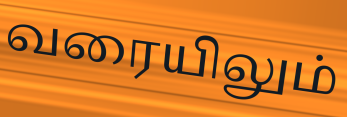
வரையிலும்